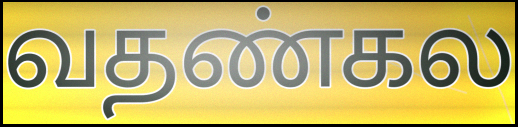
வதண்கல